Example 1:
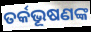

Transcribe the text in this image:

ତର୍କଭୂଷଣଙ୍କ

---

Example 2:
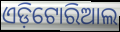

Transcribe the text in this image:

ଏଡ଼ିଟୋରିଆଲ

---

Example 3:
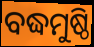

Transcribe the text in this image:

ବଦ୍ଧମୁଷ୍ଠି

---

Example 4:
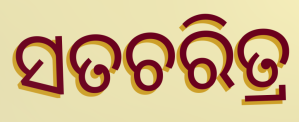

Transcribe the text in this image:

ସତଚରିତ୍ର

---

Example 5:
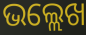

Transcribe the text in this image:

ଭଲ୍ଲେଖ